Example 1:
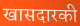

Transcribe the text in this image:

खासदारकी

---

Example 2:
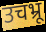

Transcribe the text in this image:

उचभ्रू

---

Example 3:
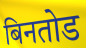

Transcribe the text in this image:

बिनतोड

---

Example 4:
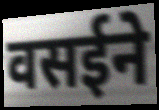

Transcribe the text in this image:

वसईने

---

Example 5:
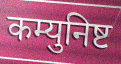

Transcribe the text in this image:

कम्युनिष्ट